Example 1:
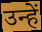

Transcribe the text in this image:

उन्हें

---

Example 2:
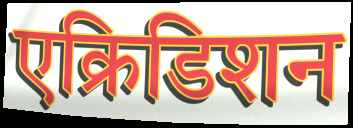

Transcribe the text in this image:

एक्रिडिशन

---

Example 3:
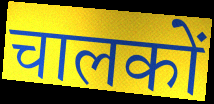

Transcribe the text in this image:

चालकों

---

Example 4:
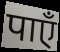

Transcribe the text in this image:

पाएँ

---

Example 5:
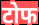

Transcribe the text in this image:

टोफ